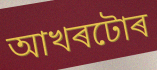
আখৰটোৰ